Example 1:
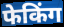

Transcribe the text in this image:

फेकिंग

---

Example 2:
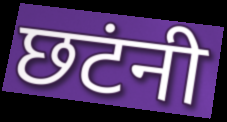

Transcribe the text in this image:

छटंनी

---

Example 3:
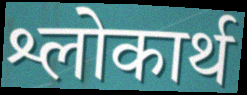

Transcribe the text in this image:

श्लोकार्थ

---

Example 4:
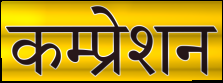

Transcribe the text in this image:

कम्प्रेशन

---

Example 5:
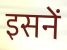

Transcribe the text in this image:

इसनें